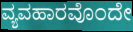
ವ್ಯವಹಾರವೊಂದೇ